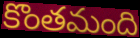
కొంతమంది